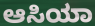
ಆಸಿಯಾ